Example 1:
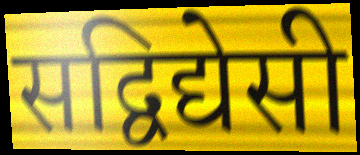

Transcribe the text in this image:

सद्विद्येसी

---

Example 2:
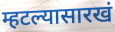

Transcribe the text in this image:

म्हटल्यासारखं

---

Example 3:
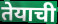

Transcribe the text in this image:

तेयाची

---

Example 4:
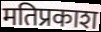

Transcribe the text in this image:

मतिप्रकाश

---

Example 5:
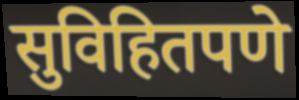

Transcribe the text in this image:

सुविहितपणे